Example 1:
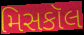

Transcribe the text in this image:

મિસકૉલ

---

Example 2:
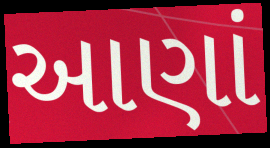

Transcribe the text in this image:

આણાં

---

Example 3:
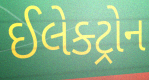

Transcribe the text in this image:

ઈલેક્ટ્રોન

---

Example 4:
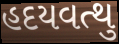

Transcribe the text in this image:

હદયવત્થુ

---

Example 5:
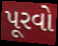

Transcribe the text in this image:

પૂરવો